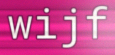
wijf